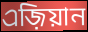
এজ়িয়ান